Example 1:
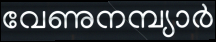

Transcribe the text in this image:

വേണുനമ്പ്യാർ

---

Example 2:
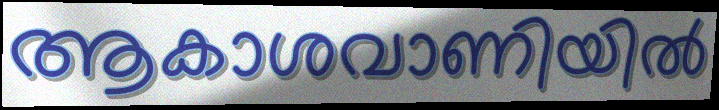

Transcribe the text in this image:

ആകാശവാണിയിൽ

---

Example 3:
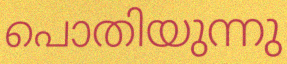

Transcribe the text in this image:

പൊതിയുന്നു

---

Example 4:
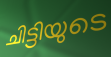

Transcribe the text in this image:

ചിട്ടിയുടെ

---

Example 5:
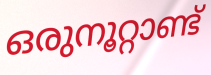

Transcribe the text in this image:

ഒരുനൂറ്റാണ്ട്